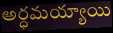
అర్ధమయ్యాయి